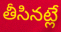
తీసినట్లే